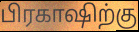
பிரகாஷிற்கு